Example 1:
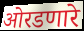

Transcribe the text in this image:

ओरडणारे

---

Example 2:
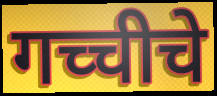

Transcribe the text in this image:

गच्चीचे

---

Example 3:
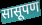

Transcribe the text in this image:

सासूपण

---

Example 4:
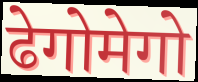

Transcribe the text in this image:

ढेगोमेगो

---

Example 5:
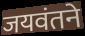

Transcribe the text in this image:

जयवंतने